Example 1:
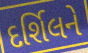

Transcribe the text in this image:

દર્શિલને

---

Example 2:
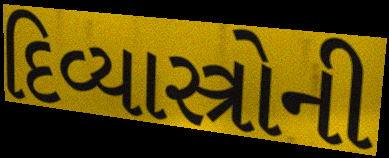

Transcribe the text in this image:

દિવ્યાસ્ત્રોની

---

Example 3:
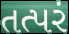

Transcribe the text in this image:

તત્પરં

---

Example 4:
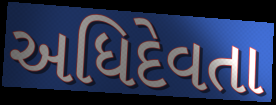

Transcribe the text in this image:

અધિદેવતા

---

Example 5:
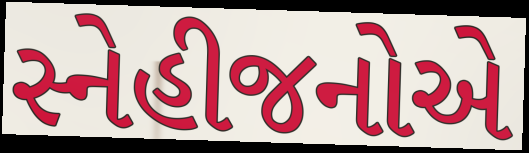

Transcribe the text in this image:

સ્નેહીજનોએ